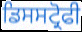
ਡਿਸਸਟ੍ਰੋਫੀ